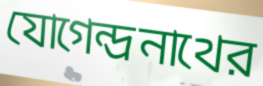
যোগেন্দ্রনাথের